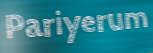
Pariyerum